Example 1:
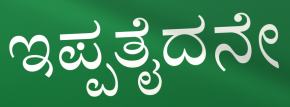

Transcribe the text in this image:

ಇಪ್ಪತೈದನೇ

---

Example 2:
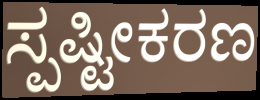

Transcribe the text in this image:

ಸ್ಪಷ್ಟೀಕರಣ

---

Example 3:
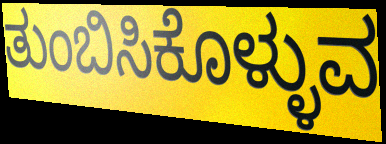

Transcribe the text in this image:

ತುಂಬಿಸಿಕೊಳ್ಳುವ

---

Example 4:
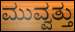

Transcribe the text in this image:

ಮುವ್ವತ್ತು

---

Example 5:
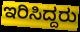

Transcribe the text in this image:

ಇರಿಸಿದ್ದರು